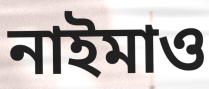
নাইমাও